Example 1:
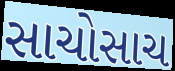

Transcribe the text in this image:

સાચોસાચ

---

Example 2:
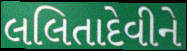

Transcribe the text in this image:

લલિતાદેવીને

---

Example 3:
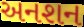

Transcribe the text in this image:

અનશન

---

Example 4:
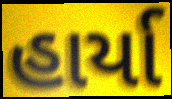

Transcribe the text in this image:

હાર્યા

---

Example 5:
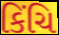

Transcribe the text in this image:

કિંચિ